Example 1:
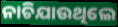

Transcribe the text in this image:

ନାଚିଯାଉଥିଲେ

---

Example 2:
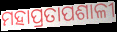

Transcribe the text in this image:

ମହାପ୍ରତାପଶାଳୀ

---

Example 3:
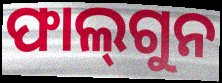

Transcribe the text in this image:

ଫାଲ୍‍ଗୁନ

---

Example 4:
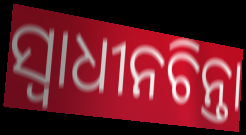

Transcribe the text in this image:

ସ୍ୱାଧୀନଚିନ୍ତା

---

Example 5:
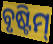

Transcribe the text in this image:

ବୃଷ୍ଟିମ୍